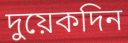
দুয়েকদিন